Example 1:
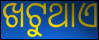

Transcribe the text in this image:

ଖଟୁଥାଏ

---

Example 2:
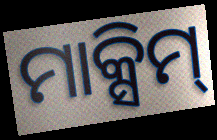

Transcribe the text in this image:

ମାକ୍ସିମ୍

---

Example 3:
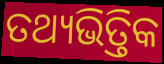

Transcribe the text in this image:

ତଥ୍ୟଭିତ୍ତିକ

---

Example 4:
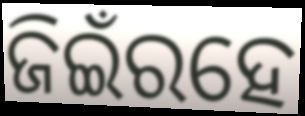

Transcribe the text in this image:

ଜିଇଁରହେ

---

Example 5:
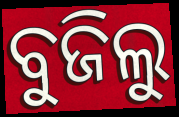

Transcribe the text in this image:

ବୁଜିଲୁ